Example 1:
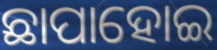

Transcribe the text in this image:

ଛାପାହୋଇ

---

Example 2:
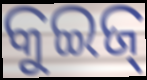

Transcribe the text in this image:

କୁଇଜ୍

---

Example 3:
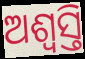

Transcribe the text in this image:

ଅଶ୍ୱସ୍ତି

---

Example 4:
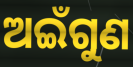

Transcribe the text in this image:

ଅଇଁଗୁଣ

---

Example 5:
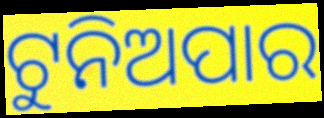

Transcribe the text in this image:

ଟୁନିଅପାର